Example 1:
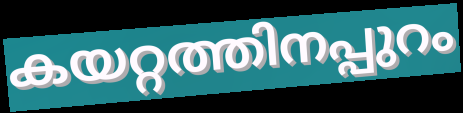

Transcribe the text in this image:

കയറ്റത്തിനപ്പുറം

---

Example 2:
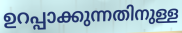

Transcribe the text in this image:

ഉറപ്പാക്കുന്നതിനുള്ള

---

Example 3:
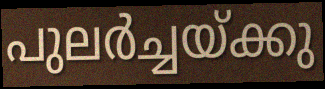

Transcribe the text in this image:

പുലർച്ചയ്ക്കു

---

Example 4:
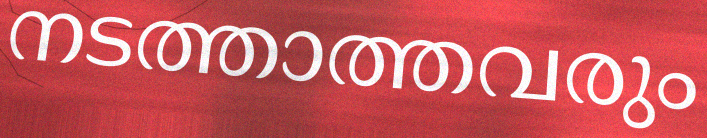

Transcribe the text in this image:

നടത്താത്തവരും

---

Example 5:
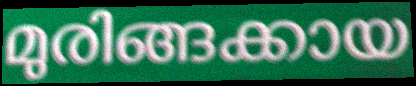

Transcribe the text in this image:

മുരിങ്ങക്കായ